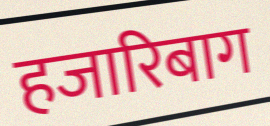
हजारिबाग